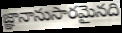
జ్ఞానానుసారమైనది